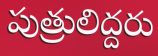
పుత్రులిద్దరు